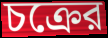
চক্রের